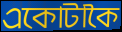
একোটাকৈ